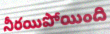
నీరయిపోయింది